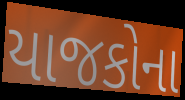
યાજકોના